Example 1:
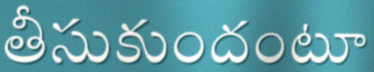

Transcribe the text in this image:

తీసుకుందంటూ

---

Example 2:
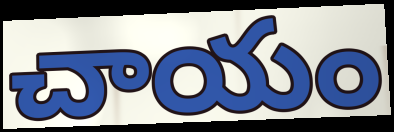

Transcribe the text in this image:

చాయం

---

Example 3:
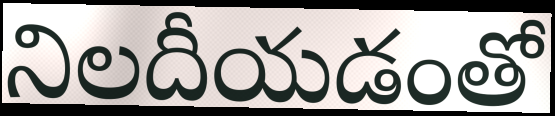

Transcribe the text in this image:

నిలదీయడంతో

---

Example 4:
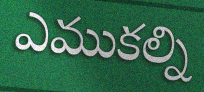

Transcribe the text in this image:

ఎముకల్ని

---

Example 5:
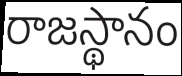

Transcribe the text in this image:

రాజస్థానం